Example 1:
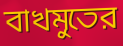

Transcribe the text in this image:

বাখমুতের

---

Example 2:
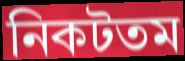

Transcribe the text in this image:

নিকটতম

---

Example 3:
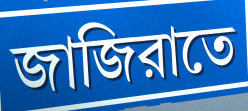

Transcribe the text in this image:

জাজিরাতে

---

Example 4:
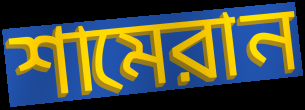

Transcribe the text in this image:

শামেরান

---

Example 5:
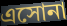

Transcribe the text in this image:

এসোনা